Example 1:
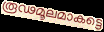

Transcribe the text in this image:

രൂഢമൂലമാകട്ടെ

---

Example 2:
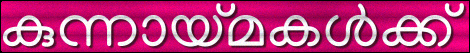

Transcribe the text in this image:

കുന്നായ്മകൾക്ക്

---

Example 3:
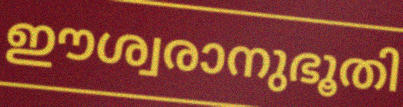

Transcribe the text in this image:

ഈശ്വരാനുഭൂതി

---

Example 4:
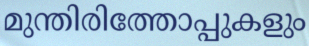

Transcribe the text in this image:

മുന്തിരിത്തോപ്പുകളും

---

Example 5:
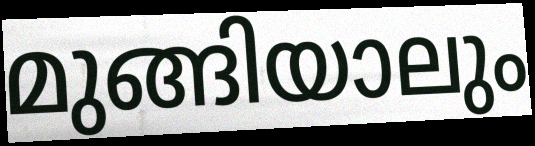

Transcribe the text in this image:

മുങ്ങിയാലും